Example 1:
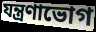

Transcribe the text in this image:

যন্ত্রণাভোগ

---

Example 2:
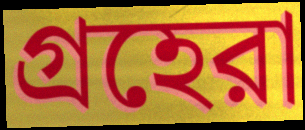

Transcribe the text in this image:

গ্রহেরা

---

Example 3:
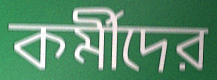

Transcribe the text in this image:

কর্মীদের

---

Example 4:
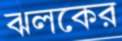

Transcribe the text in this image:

ঝলকের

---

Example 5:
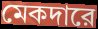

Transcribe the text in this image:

মেকদারে